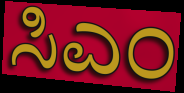
ಸಿಎಂ